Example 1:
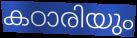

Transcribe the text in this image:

കഠാരിയും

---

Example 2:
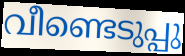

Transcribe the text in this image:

വീണ്ടെടുപ്പു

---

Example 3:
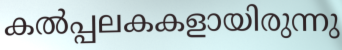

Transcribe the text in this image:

കൽപ്പലകകളായിരുന്നു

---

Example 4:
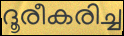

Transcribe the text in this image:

ദൂരീകരിച്ച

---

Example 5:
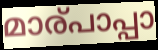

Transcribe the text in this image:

മാര്പാപ്പാ